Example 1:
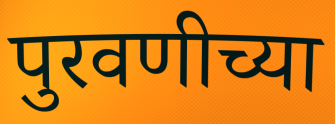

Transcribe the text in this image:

पुरवणीच्या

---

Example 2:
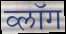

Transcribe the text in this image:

व्लॉग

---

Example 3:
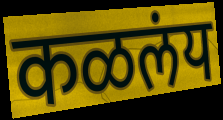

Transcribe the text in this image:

कळलंय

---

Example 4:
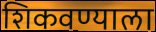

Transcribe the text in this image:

शिकवण्याला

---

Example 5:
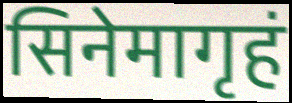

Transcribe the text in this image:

सिनेमागृहं